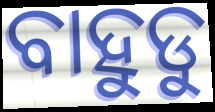
ବାହୁଡୁ